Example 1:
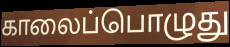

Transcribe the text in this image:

காலைப்பொழுது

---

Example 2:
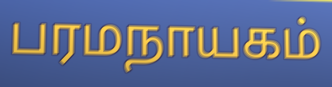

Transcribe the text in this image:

பரமநாயகம்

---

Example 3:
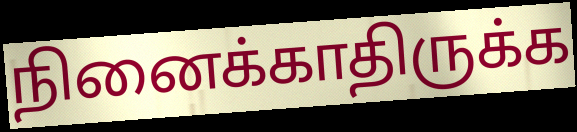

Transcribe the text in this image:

நினைக்காதிருக்க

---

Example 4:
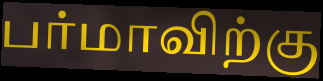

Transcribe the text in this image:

பர்மாவிற்கு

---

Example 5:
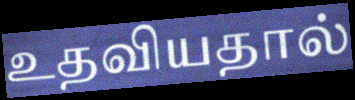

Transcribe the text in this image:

உதவியதால்